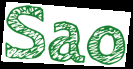
Sao